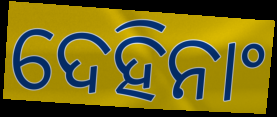
ଦେହିନାଂ